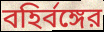
বহির্বঙ্গের